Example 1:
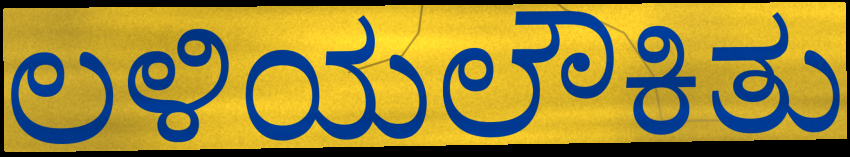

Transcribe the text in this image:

ಲಳಿಯಲೌಕಿತು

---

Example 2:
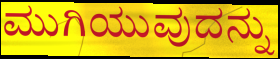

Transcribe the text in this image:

ಮುಗಿಯುವುದನ್ನು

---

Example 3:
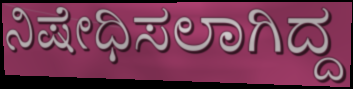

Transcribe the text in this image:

ನಿಷೇಧಿಸಲಾಗಿದ್ದ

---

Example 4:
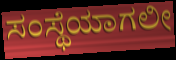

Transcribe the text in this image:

ಸಂಸ್ಥೆಯಾಗಲೀ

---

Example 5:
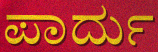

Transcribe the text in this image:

ಪಾರ್ದು